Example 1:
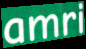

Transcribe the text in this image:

amri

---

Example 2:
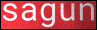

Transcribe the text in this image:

sagun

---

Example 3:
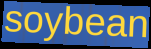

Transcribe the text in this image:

soybean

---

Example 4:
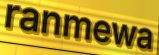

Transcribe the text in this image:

ranmewa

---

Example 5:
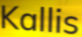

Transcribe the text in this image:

Kallis